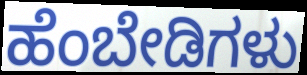
ಹೆಂಬೇಡಿಗಳು